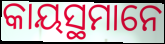
କାୟସ୍ଥମାନେ